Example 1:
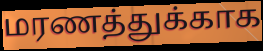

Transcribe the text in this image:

மரணத்துக்காக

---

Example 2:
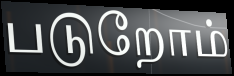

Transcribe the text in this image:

படுறோம்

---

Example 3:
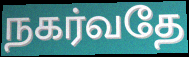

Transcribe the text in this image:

நகர்வதே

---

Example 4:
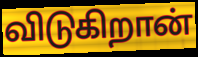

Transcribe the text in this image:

விடுகிறான்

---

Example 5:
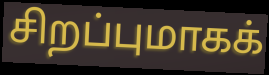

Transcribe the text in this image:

சிறப்புமாகக்